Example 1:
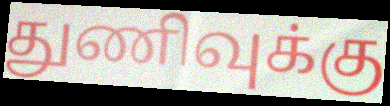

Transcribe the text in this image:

துணிவுக்கு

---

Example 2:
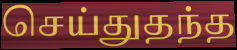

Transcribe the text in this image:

செய்துதந்த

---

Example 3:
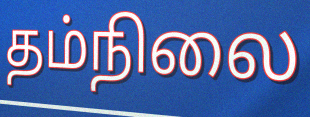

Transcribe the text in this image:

தம்நிலை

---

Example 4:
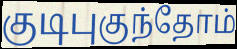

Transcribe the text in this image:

குடிபுகுந்தோம்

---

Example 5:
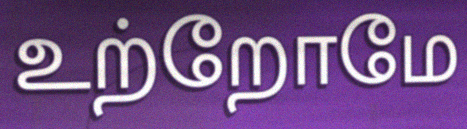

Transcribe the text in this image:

உற்றோமே